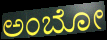
ಅಂಬೋ